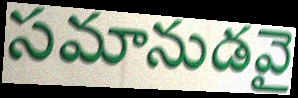
సమానుడవై